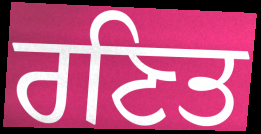
ਰਣਿਤ